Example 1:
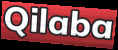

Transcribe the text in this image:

Qilaba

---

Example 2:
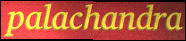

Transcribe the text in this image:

palachandra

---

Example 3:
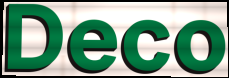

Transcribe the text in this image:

Deco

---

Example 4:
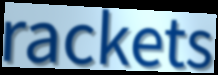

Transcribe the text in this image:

rackets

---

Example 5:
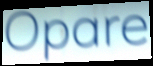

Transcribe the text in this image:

Opare